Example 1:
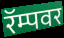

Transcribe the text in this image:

रॅम्पवर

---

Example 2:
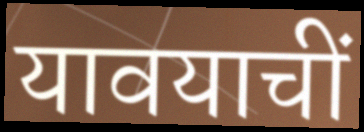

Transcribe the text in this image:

यावयाचीं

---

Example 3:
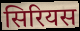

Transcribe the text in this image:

सिरियस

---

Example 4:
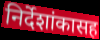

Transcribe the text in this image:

निर्देशांकासह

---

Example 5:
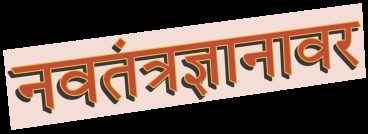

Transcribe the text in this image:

नवतंत्रज्ञानावर